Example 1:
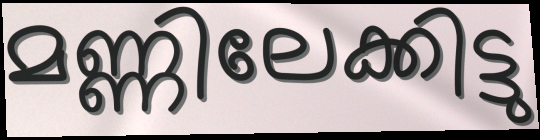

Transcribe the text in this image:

മണ്ണിലേക്കിട്ടു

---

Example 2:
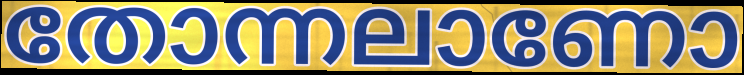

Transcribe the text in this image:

തോന്നലാണോ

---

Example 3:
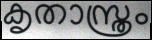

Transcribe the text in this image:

കൃതാസ്ത്രം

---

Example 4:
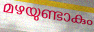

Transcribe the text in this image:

മഴയുണ്ടാകും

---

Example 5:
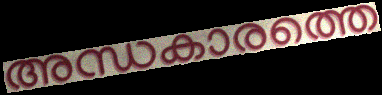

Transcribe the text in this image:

അന്ധകാരത്തെ